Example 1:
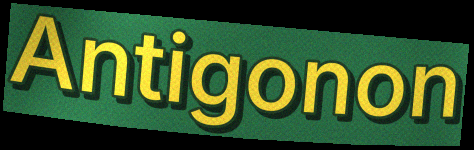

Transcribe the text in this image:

Antigonon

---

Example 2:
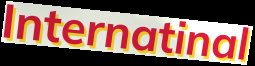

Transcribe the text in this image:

Internatinal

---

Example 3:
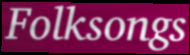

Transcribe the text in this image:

Folksongs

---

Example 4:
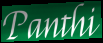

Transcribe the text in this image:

Panthi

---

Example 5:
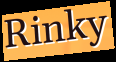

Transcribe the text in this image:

Rinky